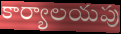
కార్యాలయపు